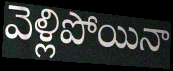
వెళ్లిపోయినా